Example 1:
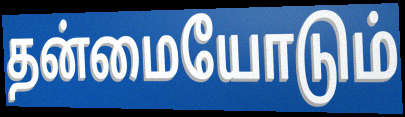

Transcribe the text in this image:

தன்மையோடும்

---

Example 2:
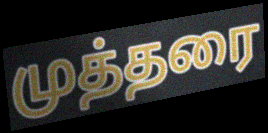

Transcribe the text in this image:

முத்தரை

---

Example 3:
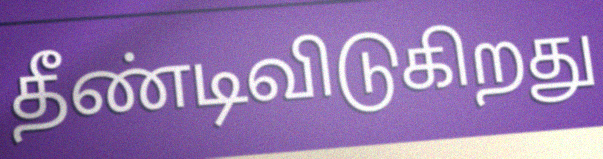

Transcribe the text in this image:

தீண்டிவிடுகிறது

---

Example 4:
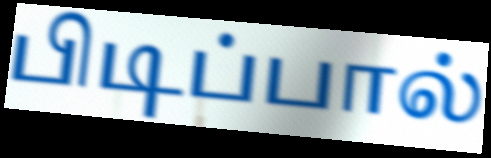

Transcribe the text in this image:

பிடிப்பால்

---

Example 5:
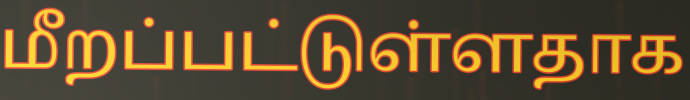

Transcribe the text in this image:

மீறப்பட்டுள்ளதாக